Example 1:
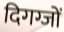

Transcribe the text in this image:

दिगग्जों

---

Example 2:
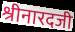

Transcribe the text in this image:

श्रीनारदजी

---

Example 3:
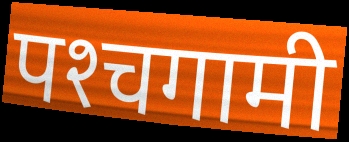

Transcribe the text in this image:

पश्चगामी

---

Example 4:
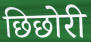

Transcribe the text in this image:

छिछोरी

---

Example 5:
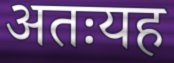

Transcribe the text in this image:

अतःयह